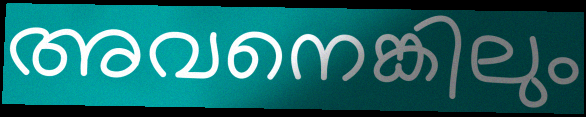
അവനെങ്കിലും